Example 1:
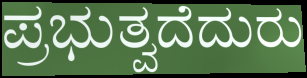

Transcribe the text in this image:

ಪ್ರಭುತ್ವದೆದುರು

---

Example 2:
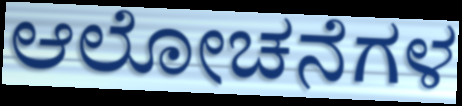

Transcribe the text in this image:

ಆಲೋಚನೆಗಳ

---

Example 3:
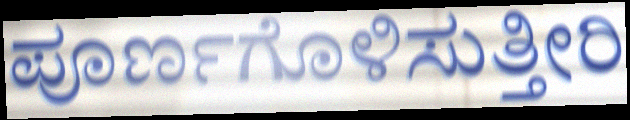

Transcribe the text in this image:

ಪೂರ್ಣಗೊಳಿಸುತ್ತೀರಿ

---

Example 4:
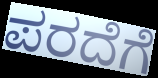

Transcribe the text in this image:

ಪರದೆಗೆ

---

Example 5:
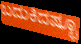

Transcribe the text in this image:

ಬದುಕಿದಷ್ಟೂ